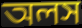
অলস